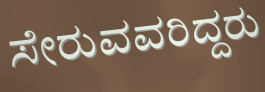
ಸೇರುವವರಿದ್ದರು